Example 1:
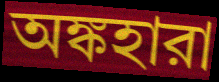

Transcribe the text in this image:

অঙ্কহারা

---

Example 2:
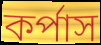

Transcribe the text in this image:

কর্পাস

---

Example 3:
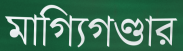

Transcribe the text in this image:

মাগ্যিগণ্ডার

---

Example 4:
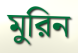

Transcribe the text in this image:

মুরিন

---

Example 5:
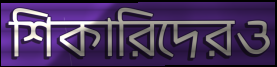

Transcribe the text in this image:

শিকারিদেরও